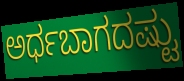
ಅರ್ಧಬಾಗದಷ್ಟು